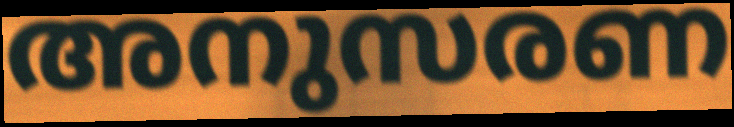
അനുസരണ